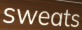
sweats